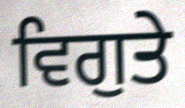
ਵਿਗੁਤੇ